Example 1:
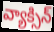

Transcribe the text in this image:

వ్యాక్సిన్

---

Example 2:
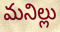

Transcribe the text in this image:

మనిల్లు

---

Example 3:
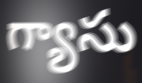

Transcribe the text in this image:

గ్యాసు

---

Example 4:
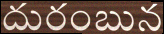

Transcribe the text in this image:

దురంబున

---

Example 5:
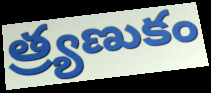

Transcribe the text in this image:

త్ర్యణుకం